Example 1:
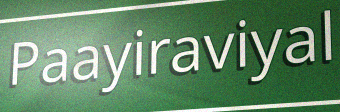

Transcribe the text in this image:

Paayiraviyal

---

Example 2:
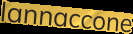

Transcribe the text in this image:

Iannaccone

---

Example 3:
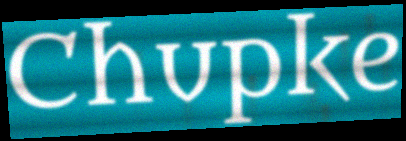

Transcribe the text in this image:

Chupke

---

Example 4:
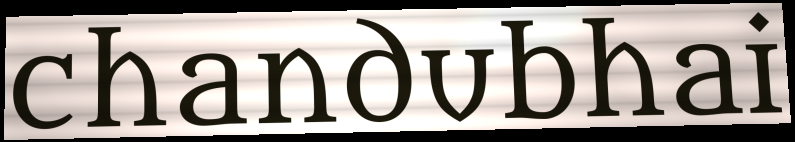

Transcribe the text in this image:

chandubhai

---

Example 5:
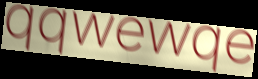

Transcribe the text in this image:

qqwewqe